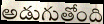
అడుగుతోంది